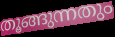
തൂങ്ങുന്നതും